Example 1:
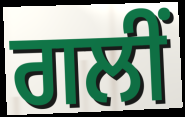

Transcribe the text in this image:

ਗਲੀਂ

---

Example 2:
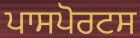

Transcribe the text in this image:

ਪਾਸਪੋਰਟਸ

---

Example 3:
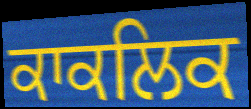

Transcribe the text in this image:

ਕਾਕਲਿਕ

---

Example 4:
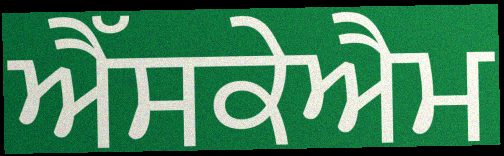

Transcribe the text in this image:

ਐੱਸਕੇਐਮ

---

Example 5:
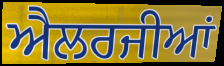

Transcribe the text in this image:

ਐਲਰਜੀਆਂ